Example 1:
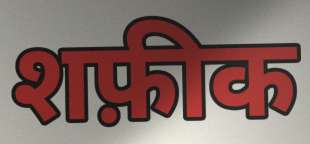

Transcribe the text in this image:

शफ़ीक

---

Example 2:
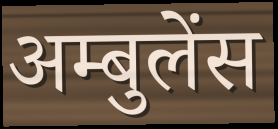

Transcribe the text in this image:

अम्बुलेंस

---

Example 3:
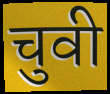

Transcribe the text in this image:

चुवी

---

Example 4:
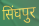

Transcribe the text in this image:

सिंघपुर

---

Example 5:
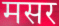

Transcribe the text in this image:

मसर